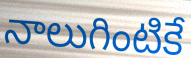
నాలుగింటికే